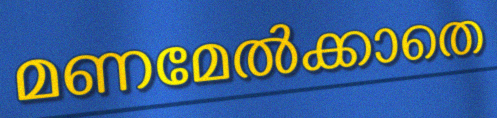
മണമേൽക്കാതെ